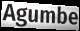
Agumbe